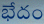
భేదం